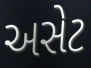
અસેટ